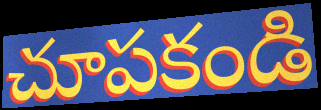
చూపకండి